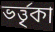
ভর্ত্তৃকা